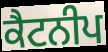
ਕੈਟਨੀਪ